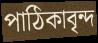
পাঠিকাবৃন্দ